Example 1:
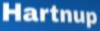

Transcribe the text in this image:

Hartnup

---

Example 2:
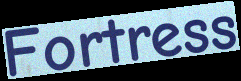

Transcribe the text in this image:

Fortress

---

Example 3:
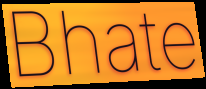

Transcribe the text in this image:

Bhate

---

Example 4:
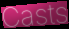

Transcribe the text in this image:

Casts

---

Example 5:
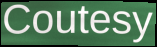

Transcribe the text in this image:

Coutesy